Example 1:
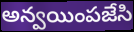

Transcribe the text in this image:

అన్వయింపజేసి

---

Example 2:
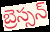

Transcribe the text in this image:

బ్రెస్సన్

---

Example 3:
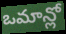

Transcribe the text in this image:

ఒమాన్లో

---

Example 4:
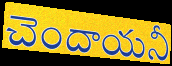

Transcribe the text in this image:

చెందాయనీ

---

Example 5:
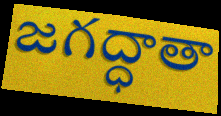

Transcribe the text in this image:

జగద్ధాతా